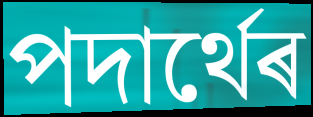
পদাৰ্থেৰ